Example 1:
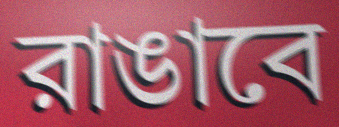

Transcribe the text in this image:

রাঙাবে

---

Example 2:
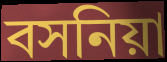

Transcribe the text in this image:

বসনিয়া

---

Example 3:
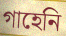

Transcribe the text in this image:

গাহেনি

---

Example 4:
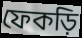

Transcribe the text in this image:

ফেকড়ি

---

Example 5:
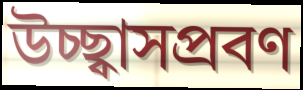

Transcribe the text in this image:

উচ্ছ্বাসপ্রবণ